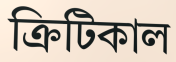
ক্রিটিকাল